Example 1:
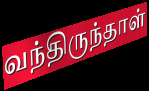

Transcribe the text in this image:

வந்திருந்தாள்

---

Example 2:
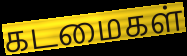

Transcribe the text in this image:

கடமைகள்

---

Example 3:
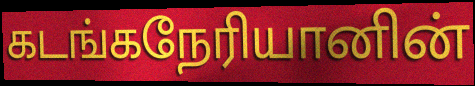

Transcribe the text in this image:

கடங்கநேரியானின்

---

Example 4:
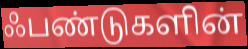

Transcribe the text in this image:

ஃபண்டுகளின்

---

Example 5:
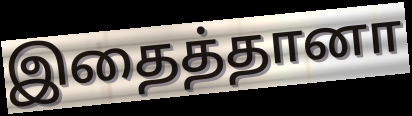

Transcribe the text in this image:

இதைத்தானா